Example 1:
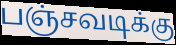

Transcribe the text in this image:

பஞ்சவடிக்கு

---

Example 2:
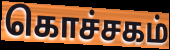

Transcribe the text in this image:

கொச்சகம்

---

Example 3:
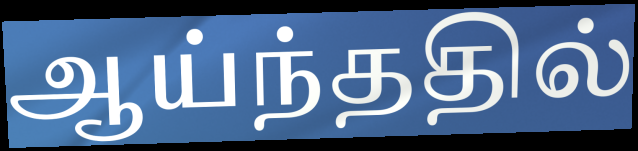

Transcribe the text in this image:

ஆய்ந்ததில்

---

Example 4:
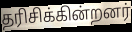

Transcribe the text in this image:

தரிசிக்கின்றனர்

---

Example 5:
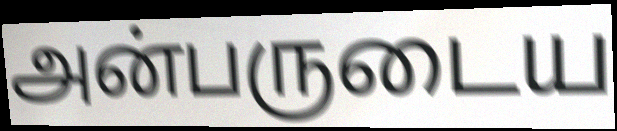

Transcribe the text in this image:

அன்பருடைய